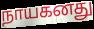
நாயகனது